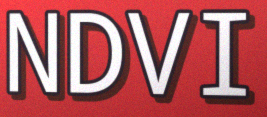
NDVI